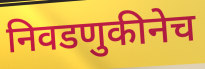
निवडणुकीनेच